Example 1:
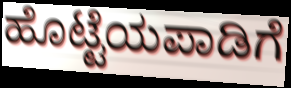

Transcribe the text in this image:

ಹೊಟ್ಟೆಯಪಾಡಿಗೆ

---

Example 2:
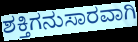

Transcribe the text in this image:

ಶಕ್ತಿಗನುಸಾರವಾಗಿ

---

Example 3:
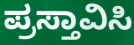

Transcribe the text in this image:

ಪ್ರಸ್ತಾವಿಸಿ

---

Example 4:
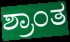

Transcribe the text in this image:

ಶ್ರಾಂತ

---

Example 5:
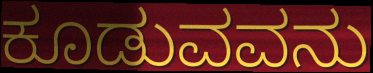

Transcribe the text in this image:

ಕೂಡುವವನು